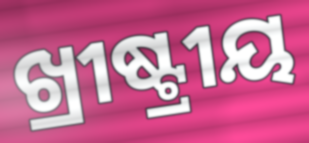
ଖ୍ରୀଷ୍ଟ୍ରୀୟ